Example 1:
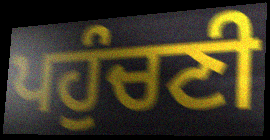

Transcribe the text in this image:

ਪਹੁੰਚਣੀ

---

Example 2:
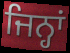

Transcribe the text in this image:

ਜਿਨ੍ਹਾਂ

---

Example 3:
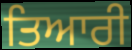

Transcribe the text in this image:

ਤਿਆਰੀ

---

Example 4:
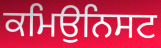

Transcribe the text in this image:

ਕਮਿਉਨਿਸਟ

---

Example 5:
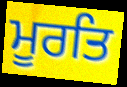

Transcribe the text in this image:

ਮੂਰਤਿ